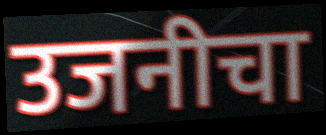
उजनीचा